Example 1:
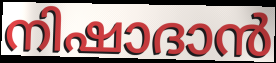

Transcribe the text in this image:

നിഷാദാൻ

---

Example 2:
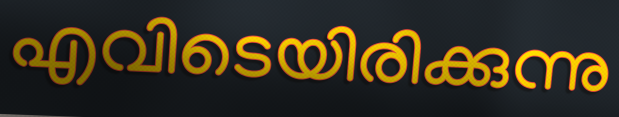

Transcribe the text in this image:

എവിടെയിരിക്കുന്നു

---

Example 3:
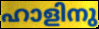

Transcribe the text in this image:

ഹാളിനു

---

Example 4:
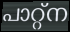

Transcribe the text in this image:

പാറ്റ്ന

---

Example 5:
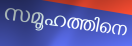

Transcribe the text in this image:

സമൂഹത്തിനെ